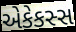
એકેકસ્સ